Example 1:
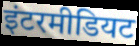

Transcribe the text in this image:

इंटरमीडियट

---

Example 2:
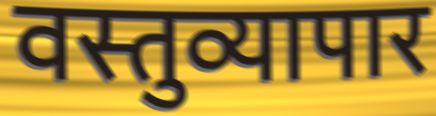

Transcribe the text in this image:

वस्तुव्यापार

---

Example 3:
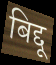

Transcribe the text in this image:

बिद्दू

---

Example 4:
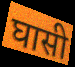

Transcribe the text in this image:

घासी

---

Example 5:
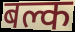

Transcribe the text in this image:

बल्क